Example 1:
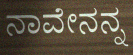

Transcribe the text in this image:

ನಾವೇನನ್ನ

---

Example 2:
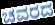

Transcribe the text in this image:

ಚವರದ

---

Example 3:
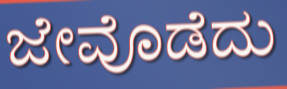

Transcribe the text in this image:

ಜೇವೊಡೆದು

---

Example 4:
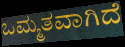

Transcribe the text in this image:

ಒಮ್ಮತವಾಗಿದೆ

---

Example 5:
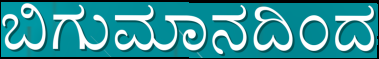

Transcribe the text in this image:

ಬಿಗುಮಾನದಿಂದ